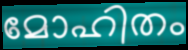
മോഹിതം